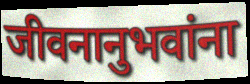
जीवनानुभवांना